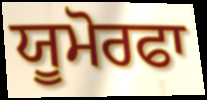
ਯੂਮੋਰਫਾ